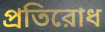
প্রতিরোধ